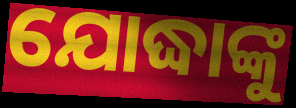
ଯୋଦ୍ଧାଙ୍କୁ